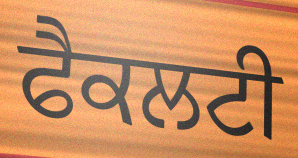
ਫੈਕਲਟੀ